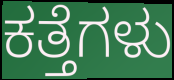
ಕತ್ತೆಗಳು